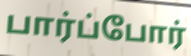
பார்ப்போர்